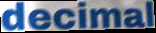
decimal